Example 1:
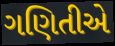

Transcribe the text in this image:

ગણિતીએ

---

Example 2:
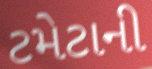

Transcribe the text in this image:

ટમેટાની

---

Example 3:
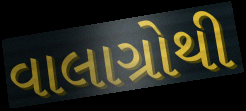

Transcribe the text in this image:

વાલાગ્રોથી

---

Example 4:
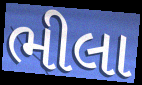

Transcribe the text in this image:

ભીલા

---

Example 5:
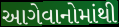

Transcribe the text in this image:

આગેવાનોમાંથી